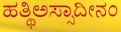
ಹತ್ಥಿಅಸ್ಸಾದೀನಂ